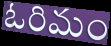
ఓరిమం